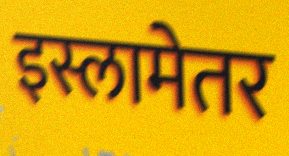
इस्लामेतर